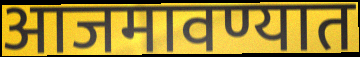
आजमावण्यात